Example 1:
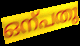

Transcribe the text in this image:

ഒന്പതു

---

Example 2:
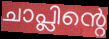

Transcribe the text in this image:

ചാപ്ലിന്റെ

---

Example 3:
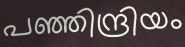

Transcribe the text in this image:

പഞ്ഞിന്ദ്രിയം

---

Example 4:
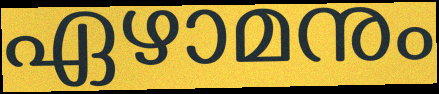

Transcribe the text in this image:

ഏഴാമനും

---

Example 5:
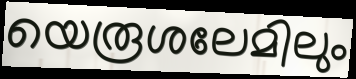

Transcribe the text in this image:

യെരൂശലേമിലും